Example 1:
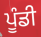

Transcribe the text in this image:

ਪੂੰਡੀ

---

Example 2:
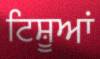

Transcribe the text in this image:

ਟਿਸ਼ੂਆਂ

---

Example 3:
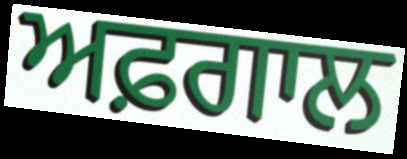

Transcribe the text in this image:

ਅਫ਼ਗਾਲ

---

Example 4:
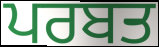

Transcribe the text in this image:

ਪਰਬਤ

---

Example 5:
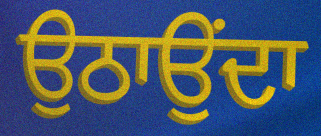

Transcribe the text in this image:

ਉਠਾਉਂਦਾ